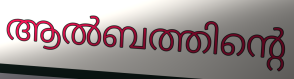
ആൽബത്തിന്റെ